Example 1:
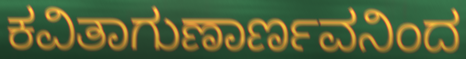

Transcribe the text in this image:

ಕವಿತಾಗುಣಾರ್ಣವನಿಂದ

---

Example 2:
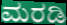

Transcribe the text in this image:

ಮರಡಿ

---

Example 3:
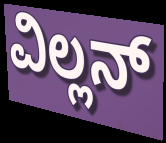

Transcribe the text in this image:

ವಿಲ್ಲನ್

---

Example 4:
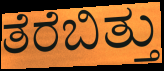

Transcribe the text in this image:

ತೆರೆಬಿತ್ತು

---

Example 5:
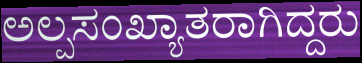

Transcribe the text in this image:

ಅಲ್ಪಸಂಖ್ಯಾತರಾಗಿದ್ದರು